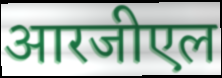
आरजीएल